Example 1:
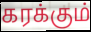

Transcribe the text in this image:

கரக்கும்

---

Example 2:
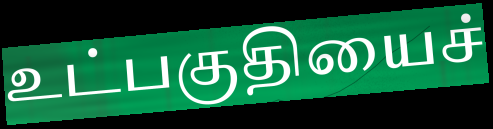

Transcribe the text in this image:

உட்பகுதியைச்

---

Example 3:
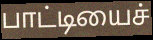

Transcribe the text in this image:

பாட்டியைச்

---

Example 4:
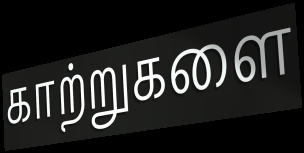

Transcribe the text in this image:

காற்றுகளை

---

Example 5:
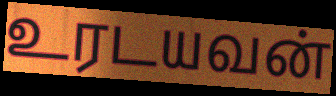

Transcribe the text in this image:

உரடயவன்